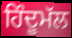
ਹਿੰਦੂਮੱਲ